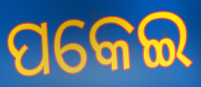
ପକେଇ